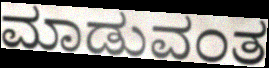
ಮಾಡುವಂತ